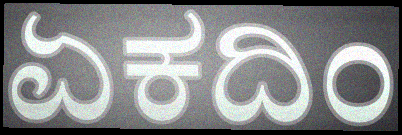
ಏಕದಿಂ